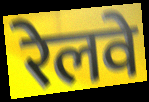
रेलवे